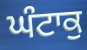
ਘੰਟਾਕੁ